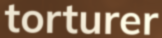
torturer